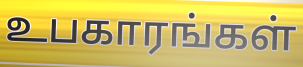
உபகாரங்கள்